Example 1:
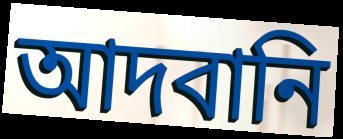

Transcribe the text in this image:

আদবানি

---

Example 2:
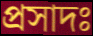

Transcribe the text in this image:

প্রসাদঃ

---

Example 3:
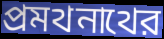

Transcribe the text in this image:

প্রমথনাথের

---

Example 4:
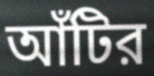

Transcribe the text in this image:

আঁটির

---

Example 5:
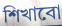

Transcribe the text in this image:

শিখাবো